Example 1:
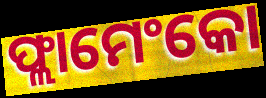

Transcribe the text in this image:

ଫ୍ଲାମେଂକୋ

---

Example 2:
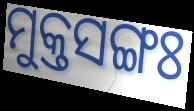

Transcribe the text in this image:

ମୁକ୍ତସଙ୍ଗଃ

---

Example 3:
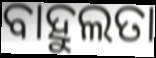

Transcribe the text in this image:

ବାହୁଲତା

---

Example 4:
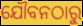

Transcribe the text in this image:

ଯୌବନଠାରୁ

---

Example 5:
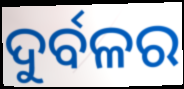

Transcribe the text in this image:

ଦୁର୍ବଳର